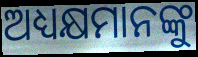
ଅଧ୍ୟକ୍ଷମାନଙ୍କୁ